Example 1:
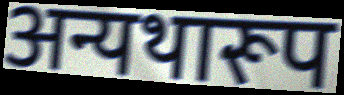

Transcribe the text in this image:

अन्यथारूप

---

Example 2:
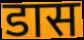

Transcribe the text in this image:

डास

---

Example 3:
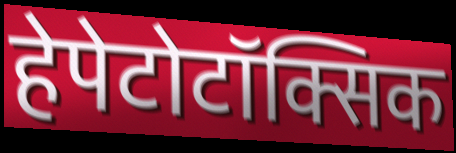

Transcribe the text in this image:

हेपेटोटॉक्सिक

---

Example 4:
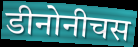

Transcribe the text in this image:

डीनोनीचस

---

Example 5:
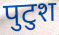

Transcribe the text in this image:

पुटुश